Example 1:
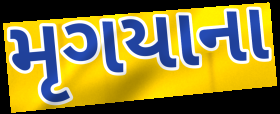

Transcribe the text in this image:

મૃગયાના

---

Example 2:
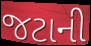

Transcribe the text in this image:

જટાની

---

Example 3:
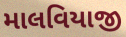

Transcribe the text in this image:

માલવિયાજી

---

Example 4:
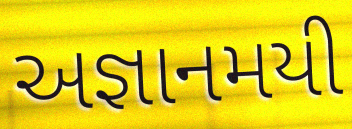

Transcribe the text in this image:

અજ્ઞાનમયી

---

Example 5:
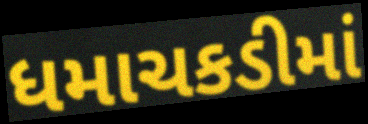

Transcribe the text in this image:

ધમાચકડીમાં